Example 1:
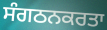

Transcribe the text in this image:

ਸੰਗਠਨਕਰਤਾ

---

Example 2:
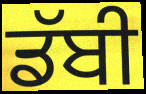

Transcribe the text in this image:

ਡੱਬੀ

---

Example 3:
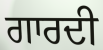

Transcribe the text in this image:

ਗਾਰਦੀ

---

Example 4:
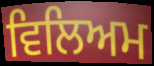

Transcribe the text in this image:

ਵਿਲਿਅਮ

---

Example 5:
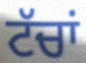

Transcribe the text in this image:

ਟੱਚਾਂ